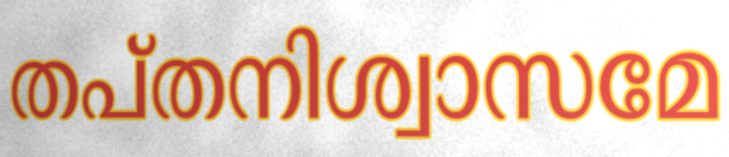
തപ്തനിശ്വാസമേ